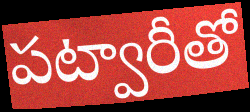
పట్వారీతో